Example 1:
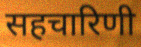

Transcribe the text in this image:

सहचारिणी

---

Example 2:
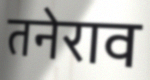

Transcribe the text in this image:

तनेराव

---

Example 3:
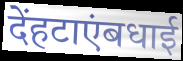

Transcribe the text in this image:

देंहटाएंबधाई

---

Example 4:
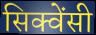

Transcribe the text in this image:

सिक्वेंसी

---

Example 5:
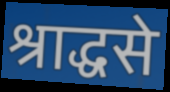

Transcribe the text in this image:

श्राद्धसे